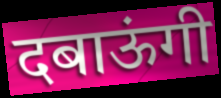
दबाऊंगी